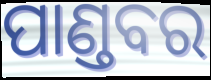
ପାଣ୍ଡବର